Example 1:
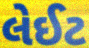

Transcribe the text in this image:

લેઈટ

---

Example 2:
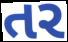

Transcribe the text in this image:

તર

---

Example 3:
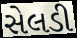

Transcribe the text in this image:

સેલડી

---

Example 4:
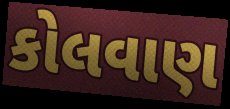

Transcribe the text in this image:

કોલવાણ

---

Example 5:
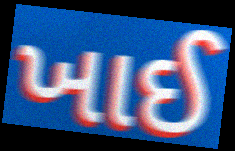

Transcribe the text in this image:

ખાઈ